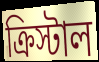
ক্রিস্টাল